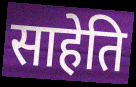
साहेति